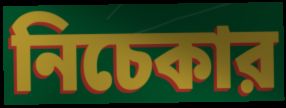
নিচেকার